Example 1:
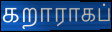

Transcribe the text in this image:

கறாராகப்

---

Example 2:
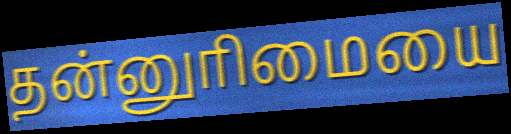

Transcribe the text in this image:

தன்னுரிமையை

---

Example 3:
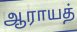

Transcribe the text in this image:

ஆராயத்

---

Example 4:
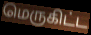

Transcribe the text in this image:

மெருகிட்ட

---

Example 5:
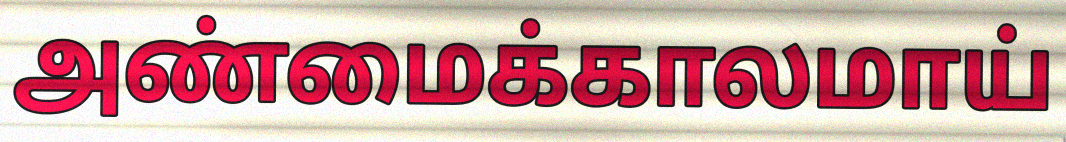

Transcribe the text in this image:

அண்மைக்காலமாய்